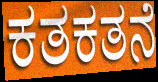
ಕತಕತನೆ